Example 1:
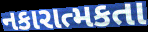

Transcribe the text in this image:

નકારાત્મકતા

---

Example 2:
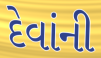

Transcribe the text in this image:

દેવાંની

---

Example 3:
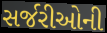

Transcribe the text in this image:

સર્જરીઓની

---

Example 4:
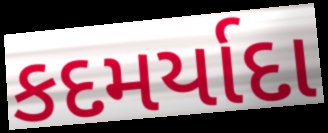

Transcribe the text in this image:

કદમર્યાદા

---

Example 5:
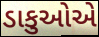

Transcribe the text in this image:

ડાકુઓએ